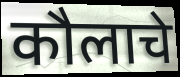
कौलाचे